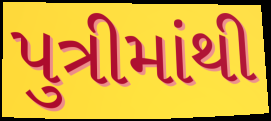
પુત્રીમાંથી